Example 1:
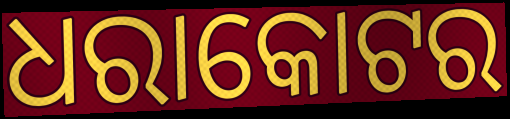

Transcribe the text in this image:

ଧରାକୋଟର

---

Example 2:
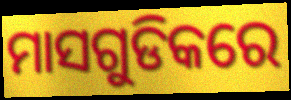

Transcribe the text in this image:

ମାସଗୁଡିକରେ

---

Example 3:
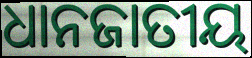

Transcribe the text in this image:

ଧାନଜାତୀୟ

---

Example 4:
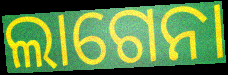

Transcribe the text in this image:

ଲାଗେନା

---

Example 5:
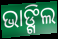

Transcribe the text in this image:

ଭାଙ୍ଗିଲ